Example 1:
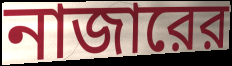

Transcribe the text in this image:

নাজারের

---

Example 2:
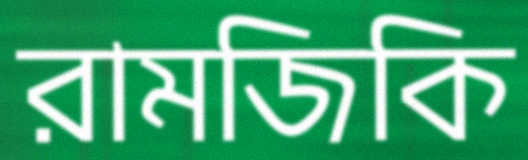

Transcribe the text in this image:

রামজিকি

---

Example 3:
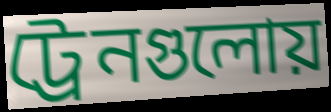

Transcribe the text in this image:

ট্রেনগুলোয়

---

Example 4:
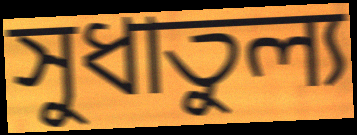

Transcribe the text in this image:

সুধাতুল্য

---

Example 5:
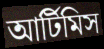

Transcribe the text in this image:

আর্টিমিস